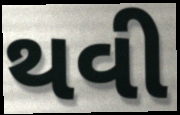
થવી